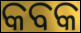
କବକ